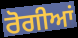
ਰੋਗੀਆਂ